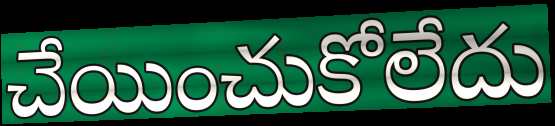
చేయించుకోలేదు